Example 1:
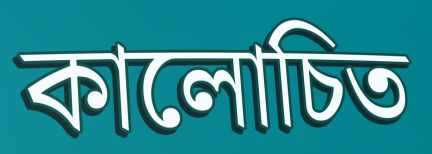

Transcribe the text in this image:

কালোচিত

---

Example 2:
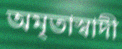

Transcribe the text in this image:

অমৃতাস্বাদী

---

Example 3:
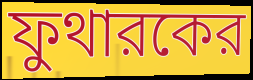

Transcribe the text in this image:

ফুথারকের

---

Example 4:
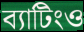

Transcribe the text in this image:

ব্যাটিংও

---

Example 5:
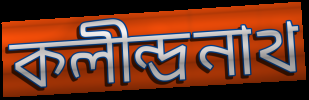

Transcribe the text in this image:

কলীন্দ্রনাথ